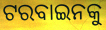
ଟରବାଇନକୁ